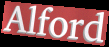
Alford